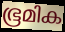
ഭൂമിക